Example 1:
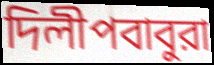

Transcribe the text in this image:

দিলীপবাবুরা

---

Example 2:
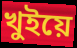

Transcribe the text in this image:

খুইয়ে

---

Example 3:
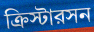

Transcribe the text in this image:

ক্রিস্টারসন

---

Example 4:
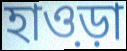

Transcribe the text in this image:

হাও়ড়া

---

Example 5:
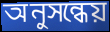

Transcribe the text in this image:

অনুসন্ধেয়